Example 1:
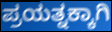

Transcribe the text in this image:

ಪ್ರಯತ್ನಕ್ಕಾಗಿ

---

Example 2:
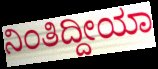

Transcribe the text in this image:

ನಿಂತಿದ್ದೀಯಾ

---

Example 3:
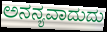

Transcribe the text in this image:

ಅನನ್ಯವಾದುದು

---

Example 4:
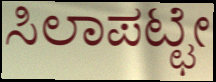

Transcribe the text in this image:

ಸಿಲಾಪಟ್ಟೇ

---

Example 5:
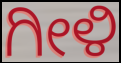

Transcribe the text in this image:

ಗೀಳಿ